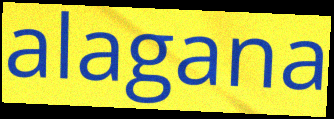
alagana